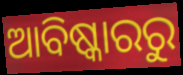
ଆବିଷ୍କାରରୁ